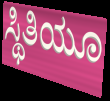
ಸ್ಥಿತಿಯೂ